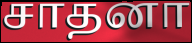
சாதனா